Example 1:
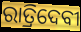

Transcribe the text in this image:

ରାତ୍ରିଦେବୀ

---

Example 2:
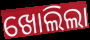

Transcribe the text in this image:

ଖୋଲିଲା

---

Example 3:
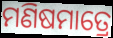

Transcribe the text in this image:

ମଣିଷମାତ୍ରେ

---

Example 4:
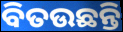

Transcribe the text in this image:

ବିତଉଛନ୍ତି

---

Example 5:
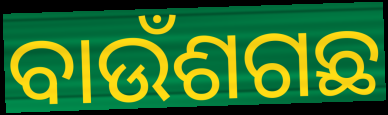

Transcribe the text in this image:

ବାଉଁଶଗଛ